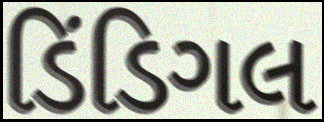
ડિંડિગલ